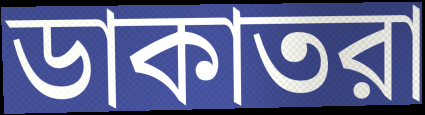
ডাকাতরা